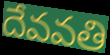
దేవవతి